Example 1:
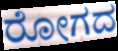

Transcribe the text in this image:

ರೋಗದ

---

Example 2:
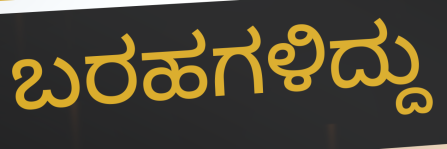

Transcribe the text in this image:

ಬರಹಗಳಿದ್ದು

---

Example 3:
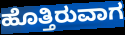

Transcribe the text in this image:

ಹೊತ್ತಿರುವಾಗ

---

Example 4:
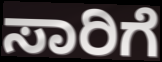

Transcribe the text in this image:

ಸಾರಿಗೆ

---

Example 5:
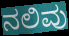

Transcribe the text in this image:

ನಲಿವು